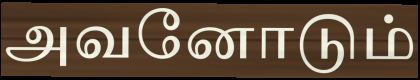
அவனோடும்